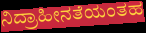
ನಿದ್ರಾಹೀನತೆಯಂತಹ